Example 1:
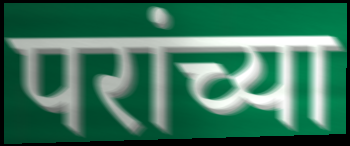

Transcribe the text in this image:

परांच्या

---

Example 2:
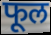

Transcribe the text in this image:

फूल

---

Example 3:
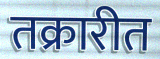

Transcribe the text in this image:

तक्रारीत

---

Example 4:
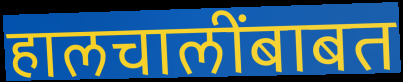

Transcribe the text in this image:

हालचालींबाबत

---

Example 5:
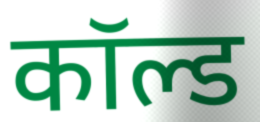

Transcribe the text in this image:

कॉल्ड